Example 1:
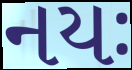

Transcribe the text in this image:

નયઃ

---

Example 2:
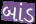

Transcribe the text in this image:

બાંડ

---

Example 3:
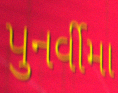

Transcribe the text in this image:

પુનર્વીમા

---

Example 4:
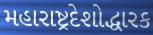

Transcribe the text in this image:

મહારાષ્ટ્રદેશોદ્ધારક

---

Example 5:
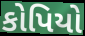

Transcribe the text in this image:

કોપિયો